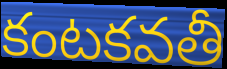
కంటకవతీ